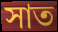
সাত